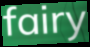
fairy